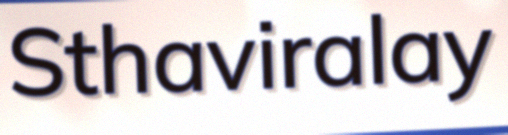
Sthaviralay